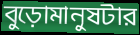
বুড়োমানুষটার